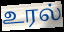
உரல்